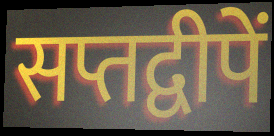
सप्तद्वीपें